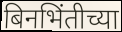
बिनभिंतीच्या